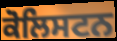
ਕੋਲਿਸਟਨ